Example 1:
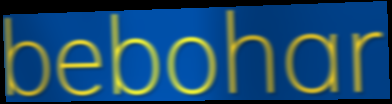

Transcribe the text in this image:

bebohar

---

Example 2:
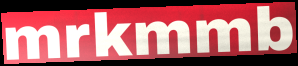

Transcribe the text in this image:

mrkmmb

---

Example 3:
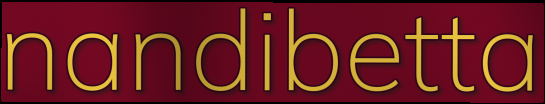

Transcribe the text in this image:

nandibetta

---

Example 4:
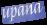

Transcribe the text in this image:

upana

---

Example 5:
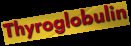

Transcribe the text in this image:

Thyroglobulin